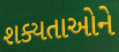
શક્યતાઓને